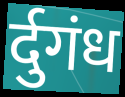
र्दुगंध